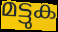
മട്ടുക